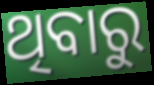
ଥିବାରୁ